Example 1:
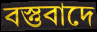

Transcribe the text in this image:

বস্তুবাদে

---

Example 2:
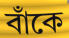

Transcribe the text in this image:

বাঁকে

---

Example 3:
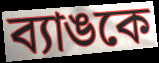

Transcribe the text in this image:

ব্যাঙকে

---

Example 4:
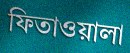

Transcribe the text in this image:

ফিতাওয়ালা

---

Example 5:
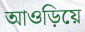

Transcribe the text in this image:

আওড়িয়ে